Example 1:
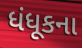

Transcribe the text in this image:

ધંધૂકના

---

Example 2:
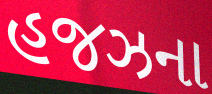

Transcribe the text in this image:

હજઝના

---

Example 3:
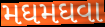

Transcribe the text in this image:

મઘમઘવા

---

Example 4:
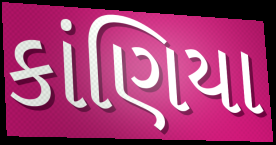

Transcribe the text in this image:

કાંણિયા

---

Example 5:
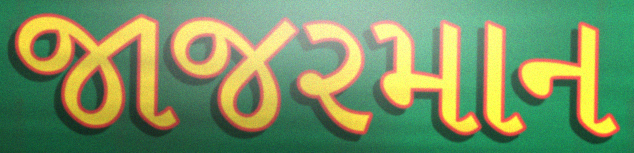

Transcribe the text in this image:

જાજરમાન